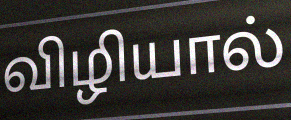
விழியால்